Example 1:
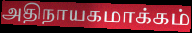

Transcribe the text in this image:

அதிநாயகமாக்கம்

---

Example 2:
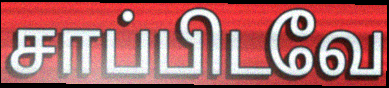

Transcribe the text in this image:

சாப்பிடவே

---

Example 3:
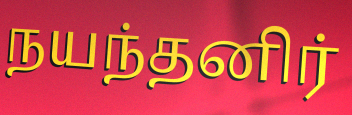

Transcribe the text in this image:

நயந்தனிர்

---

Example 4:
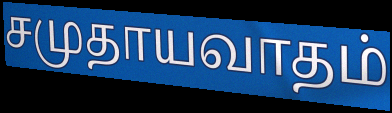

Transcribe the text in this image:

சமுதாயவாதம்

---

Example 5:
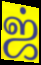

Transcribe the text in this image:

ஜ்